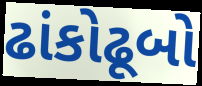
ઢાંકોઢૂબો